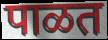
पाळत